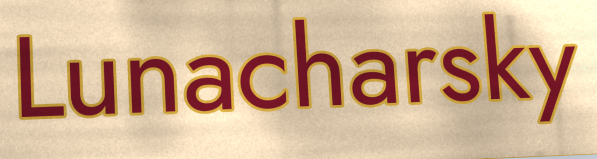
Lunacharsky